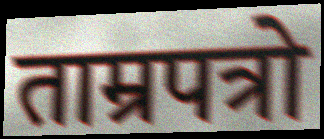
ताम्रपत्रो